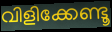
വിളിക്കേണ്ടൂ